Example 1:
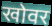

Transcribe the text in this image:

खोवर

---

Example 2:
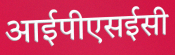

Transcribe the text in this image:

आईपीएसईसी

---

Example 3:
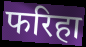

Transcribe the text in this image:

फरिहा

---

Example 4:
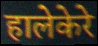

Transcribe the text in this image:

हालेकेरे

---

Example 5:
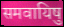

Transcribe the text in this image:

समवायिषु